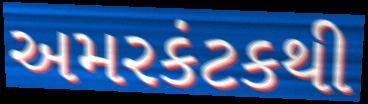
અમરકંટકથી